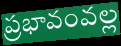
ప్రభావంవల్ల